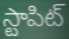
స్టాపిట్